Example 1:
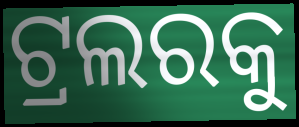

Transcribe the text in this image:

ଟ୍ରଲରକୁ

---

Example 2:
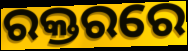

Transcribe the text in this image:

ରକ୍ତରରେ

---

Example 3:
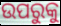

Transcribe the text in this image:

ଉପରୁକୁ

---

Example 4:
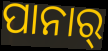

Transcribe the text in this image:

ପାନାର୍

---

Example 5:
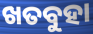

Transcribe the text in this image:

ଖତବୁହା